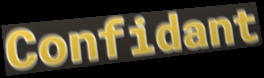
Confidant